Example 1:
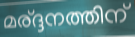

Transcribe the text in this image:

മര്ദ്ദനത്തിന്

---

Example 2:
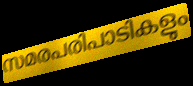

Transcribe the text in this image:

സമരപരിപാടികളും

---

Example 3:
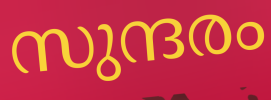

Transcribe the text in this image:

സുന്ദരം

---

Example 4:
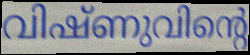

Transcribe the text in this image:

വിഷ്ണുവിന്റെ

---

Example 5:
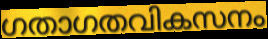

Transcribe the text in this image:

ഗതാഗതവികസനം